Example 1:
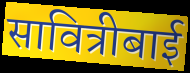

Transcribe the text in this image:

सावित्रीबाई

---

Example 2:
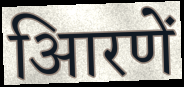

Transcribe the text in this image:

आिरणें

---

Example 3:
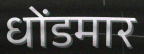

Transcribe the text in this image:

धोंडमार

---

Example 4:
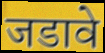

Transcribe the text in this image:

जडावे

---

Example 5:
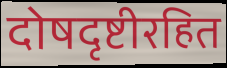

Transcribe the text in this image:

दोषदृष्टीरहित